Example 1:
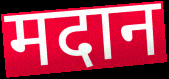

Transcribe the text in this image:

मदान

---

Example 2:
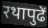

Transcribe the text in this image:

रथापुढें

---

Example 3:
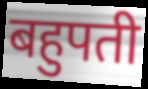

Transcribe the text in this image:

बहुपती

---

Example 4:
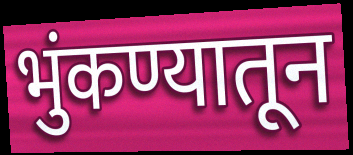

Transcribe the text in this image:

भुंकण्यातून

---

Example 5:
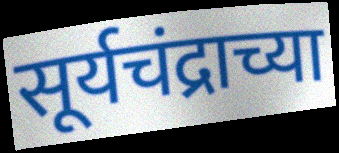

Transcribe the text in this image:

सूर्यचंद्राच्या